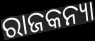
ରାଜକନ୍ୟା